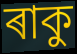
ৰাকু